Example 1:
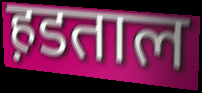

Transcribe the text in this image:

ह़डताल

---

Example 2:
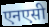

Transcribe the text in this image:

एनएसी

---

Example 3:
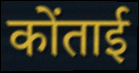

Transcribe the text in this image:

कोंताई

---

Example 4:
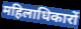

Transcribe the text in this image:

महिलाधिकारों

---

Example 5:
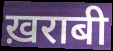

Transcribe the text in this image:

ख़राबी